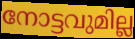
നോട്ടവുമില്ല